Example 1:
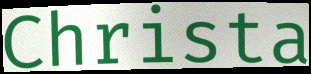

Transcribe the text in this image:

Christa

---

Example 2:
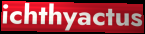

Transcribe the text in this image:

ichthyactus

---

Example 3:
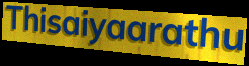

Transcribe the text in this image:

Thisaiyaarathu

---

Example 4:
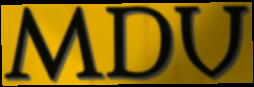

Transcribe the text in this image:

MDU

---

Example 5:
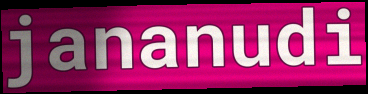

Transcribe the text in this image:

jananudi